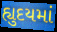
હ્યુદયમાં